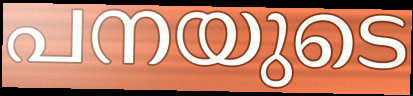
പനയുടെ